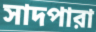
সাদপারা